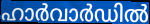
ഹാർവാർഡിൽ